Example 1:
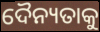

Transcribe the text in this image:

ଦୈନ୍ୟତାକୁ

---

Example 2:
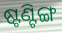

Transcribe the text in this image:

ଷ୍ଟଣ୍ଟିଙ୍ଗ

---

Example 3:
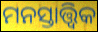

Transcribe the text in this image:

ମନସ୍ତାତ୍ତ୍ୱିକ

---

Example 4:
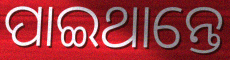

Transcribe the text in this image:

ପାଇଥାନ୍ତେ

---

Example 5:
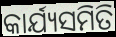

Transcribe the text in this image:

କାର୍ଯ୍ୟସମିତି